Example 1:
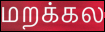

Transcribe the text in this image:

மறக்கல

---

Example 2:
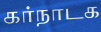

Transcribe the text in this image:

கர்நாடக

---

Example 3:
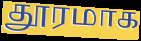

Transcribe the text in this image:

தூரமாக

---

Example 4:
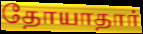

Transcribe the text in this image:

தோயாதார்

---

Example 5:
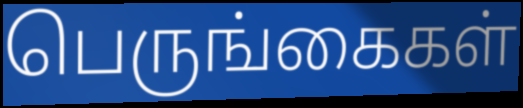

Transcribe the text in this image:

பெருங்கைகள்